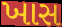
ખાસ